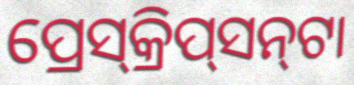
ପ୍ରେସ୍‌କ୍ରିପ୍‌ସନ୍‌ଟା